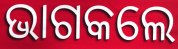
ଭାଗକଲେ